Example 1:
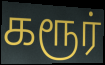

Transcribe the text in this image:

கரூர்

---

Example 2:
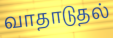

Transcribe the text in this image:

வாதாடுதல்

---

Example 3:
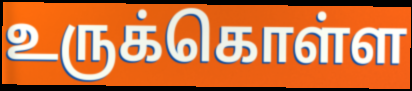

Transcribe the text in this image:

உருக்கொள்ள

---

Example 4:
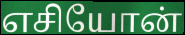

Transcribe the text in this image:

எசியோன்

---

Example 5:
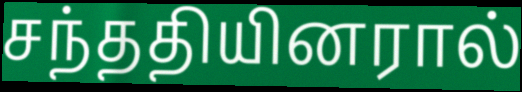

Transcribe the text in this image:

சந்ததியினரால்